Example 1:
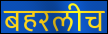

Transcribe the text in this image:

बहरलीच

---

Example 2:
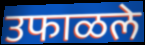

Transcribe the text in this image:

उफाळले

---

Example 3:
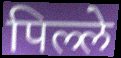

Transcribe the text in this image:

पिल्ले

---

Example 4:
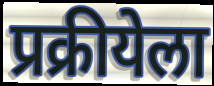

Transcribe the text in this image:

प्रक्रीयेला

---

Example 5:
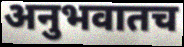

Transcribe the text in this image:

अनुभवातच